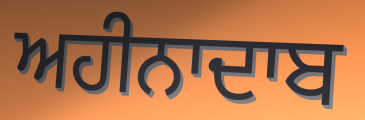
ਅਹੀਨਾਦਾਬ